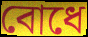
বোধে